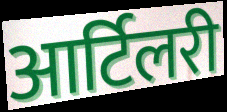
आर्टिलरी